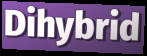
Dihybrid